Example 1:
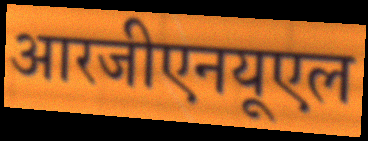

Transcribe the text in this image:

आरजीएनयूएल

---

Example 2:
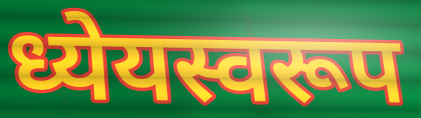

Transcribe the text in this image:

ध्येयस्वरूप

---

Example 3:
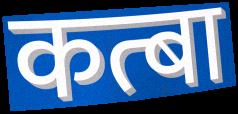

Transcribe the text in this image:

कत्बा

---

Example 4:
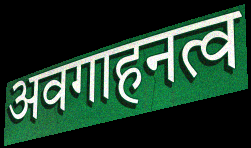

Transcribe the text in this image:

अवगाहनत्व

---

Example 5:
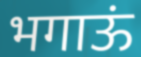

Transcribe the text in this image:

भगाऊं